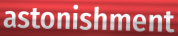
astonishment